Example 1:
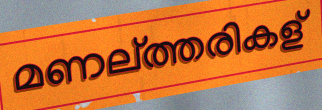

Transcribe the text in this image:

മണല്ത്തരികള്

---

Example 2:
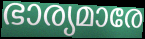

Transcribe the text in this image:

ഭാര്യമാരേ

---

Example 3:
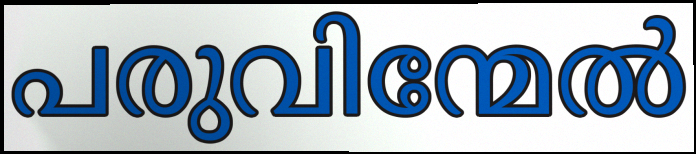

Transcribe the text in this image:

പരുവിന്മേൽ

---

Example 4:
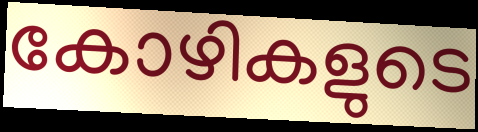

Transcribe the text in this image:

കോഴികളുടെ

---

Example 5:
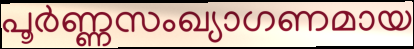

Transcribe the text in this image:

പൂർണ്ണസംഖ്യാഗണമായ